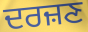
ਦਰਜ਼ਣ